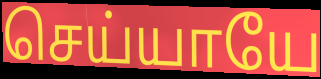
செய்யாயே